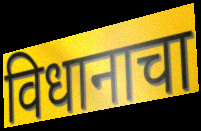
विधानाचा